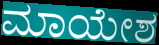
ಮಾಯೇಶ